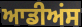
ਆਡੀਅਂਸ